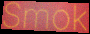
Smok